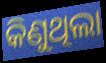
କିଣୁଥିଲା